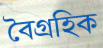
বৈগ্রহিক